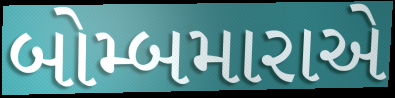
બોમ્બમારાએ